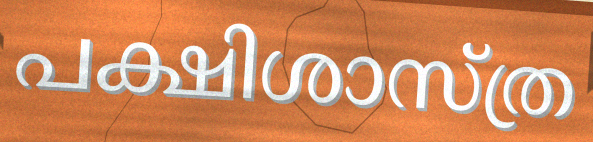
പക്ഷിശാസ്ത്ര